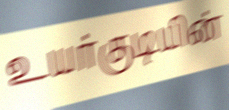
உயர்குடியின்